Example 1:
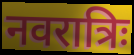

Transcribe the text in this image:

नवरात्रिः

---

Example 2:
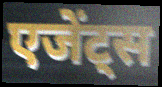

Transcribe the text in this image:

एजेंट्स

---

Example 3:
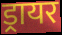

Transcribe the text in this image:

ड्रायर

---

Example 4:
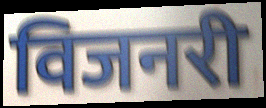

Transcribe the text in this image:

विजनरी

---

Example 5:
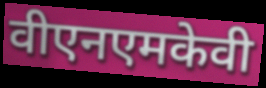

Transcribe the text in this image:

वीएनएमकेवी